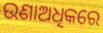
ଉଣାଅଧିକରେ